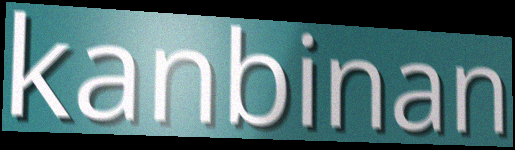
kanbinan